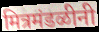
मित्रमंडळीनी